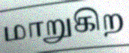
மாறுகிற